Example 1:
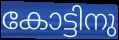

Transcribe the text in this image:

കോട്ടിനു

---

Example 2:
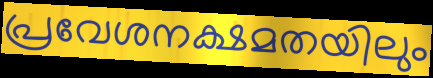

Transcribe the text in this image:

പ്രവേശനക്ഷമതയിലും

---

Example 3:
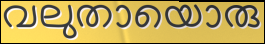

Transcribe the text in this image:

വലുതായൊരു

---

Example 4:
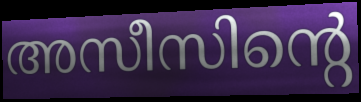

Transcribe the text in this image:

അസീസിന്റെ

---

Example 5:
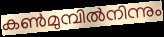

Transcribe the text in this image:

കൺമുമ്പിൽനിന്നും